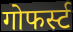
गोफर्स्ट